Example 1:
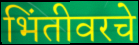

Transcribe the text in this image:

भिंतीवरचे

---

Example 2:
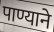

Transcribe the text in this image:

पाण्याने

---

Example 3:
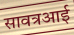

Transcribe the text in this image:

सावत्रआई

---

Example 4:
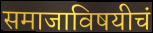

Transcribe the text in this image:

समाजाविषयीचं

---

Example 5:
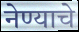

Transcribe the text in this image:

नेण्याचे